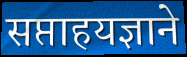
सप्ताहयज्ञाने